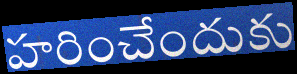
హరించేందుకు